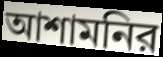
আশামনির